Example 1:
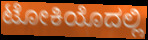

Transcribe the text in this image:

ಟೋಕಿಯೊದಲ್ಲಿ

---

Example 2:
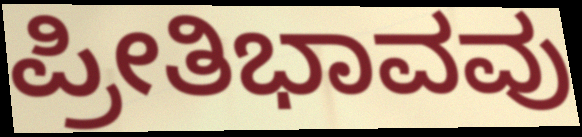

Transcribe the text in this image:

ಪ್ರೀತಿಭಾವವು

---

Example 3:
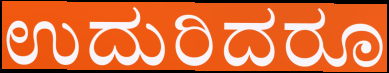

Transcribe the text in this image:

ಉದುರಿದರೂ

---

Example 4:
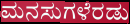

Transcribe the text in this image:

ಮನಸುಗಳೆರಡು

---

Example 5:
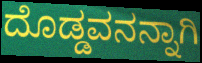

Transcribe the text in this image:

ದೊಡ್ಡವನನ್ನಾಗಿ